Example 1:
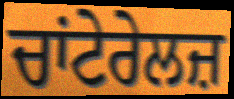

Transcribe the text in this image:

ਚਾਂਟੇਰੇਲਜ਼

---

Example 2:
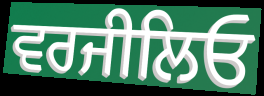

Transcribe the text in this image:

ਵਰਜੀਲਿਓ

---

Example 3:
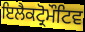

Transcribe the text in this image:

ਇਲੈਕਟ੍ਰੋਮੌਟਿਵ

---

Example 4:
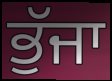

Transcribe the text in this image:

ਭੁੱਜਾ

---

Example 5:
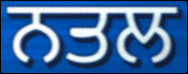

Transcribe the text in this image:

ਨਤਲ